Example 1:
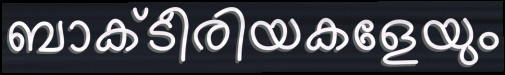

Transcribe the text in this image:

ബാക്ടീരിയകളേയും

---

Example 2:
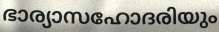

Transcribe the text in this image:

ഭാര്യാസഹോദരിയും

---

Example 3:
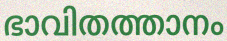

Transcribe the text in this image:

ഭാവിതത്താനം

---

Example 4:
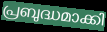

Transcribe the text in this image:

പ്രബുദ്ധമാക്കി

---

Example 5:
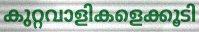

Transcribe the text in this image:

കുറ്റവാളികളെക്കൂടി